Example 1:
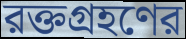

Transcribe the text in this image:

রক্তগ্রহণের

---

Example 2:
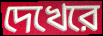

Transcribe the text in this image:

দেখেরে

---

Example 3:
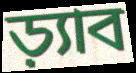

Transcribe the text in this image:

ড়্যাব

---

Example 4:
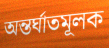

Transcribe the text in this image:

অন্তর্ঘাতমূলক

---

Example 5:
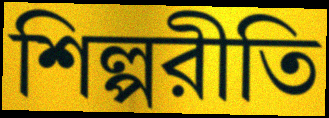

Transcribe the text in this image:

শিল্পরীতি